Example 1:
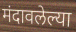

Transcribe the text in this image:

मंदावलेल्या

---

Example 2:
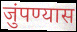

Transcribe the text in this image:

जुंपण्यास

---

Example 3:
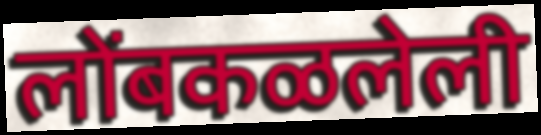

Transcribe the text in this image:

लोंबकळलेली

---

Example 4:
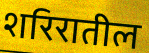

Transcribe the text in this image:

शरिरातील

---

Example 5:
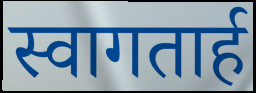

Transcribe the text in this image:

स्वागतार्ह